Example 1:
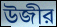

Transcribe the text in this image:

উজীর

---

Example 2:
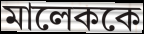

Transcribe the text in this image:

মালেককে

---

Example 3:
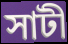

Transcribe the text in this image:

সাটী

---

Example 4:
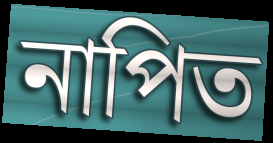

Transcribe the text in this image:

নাপিত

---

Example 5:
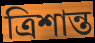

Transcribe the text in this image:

ত্রিশান্ত